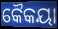
କୈକୟା